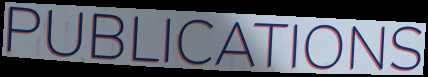
PUBLICATIONS